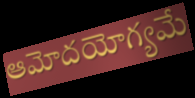
ఆమోదయోగ్యమే